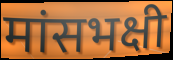
मांसभक्षी